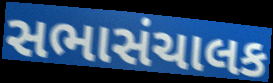
સભાસંચાલક